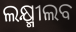
ଲକ୍ଷ୍ମୀଲବ